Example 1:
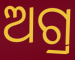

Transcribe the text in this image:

ଅଗ୍ର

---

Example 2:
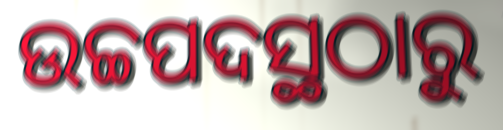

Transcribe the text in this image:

ଉଚ୍ଚପଦସ୍ଥଠାରୁ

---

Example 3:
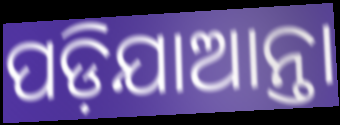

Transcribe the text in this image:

ପଡ଼ିଯାଆନ୍ତା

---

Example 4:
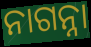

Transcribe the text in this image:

ନାଗନ୍ନା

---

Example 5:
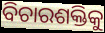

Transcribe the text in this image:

ବିଚାରଶକ୍ତିକୁ